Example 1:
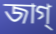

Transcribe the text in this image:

জাগ্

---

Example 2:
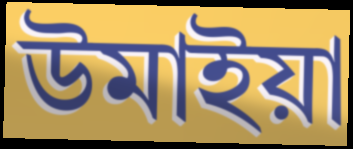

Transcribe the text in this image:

উমাইয়া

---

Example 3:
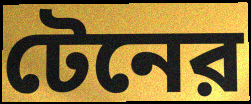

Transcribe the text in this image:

টেনের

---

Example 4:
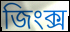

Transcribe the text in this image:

জিংক্স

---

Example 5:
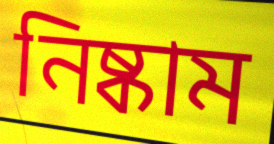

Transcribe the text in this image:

নিষ্কাম